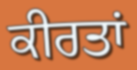
ਕੀਰਤਾਂ